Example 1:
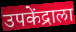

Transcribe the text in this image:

उपकेंद्राला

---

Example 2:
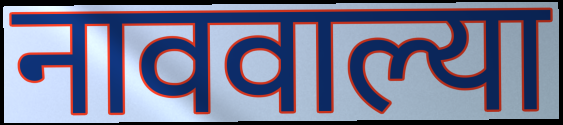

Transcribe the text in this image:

नाववाल्या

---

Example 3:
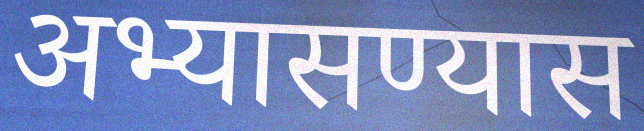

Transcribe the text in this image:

अभ्यासण्यास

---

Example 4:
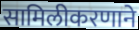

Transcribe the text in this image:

सामिलीकरणाने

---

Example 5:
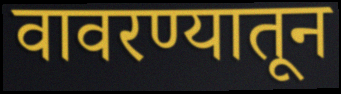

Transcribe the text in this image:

वावरण्यातून